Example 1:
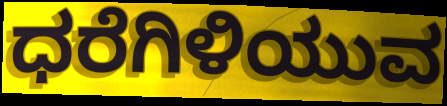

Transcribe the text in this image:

ಧರೆಗಿಳಿಯುವ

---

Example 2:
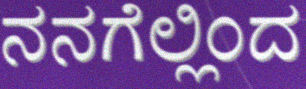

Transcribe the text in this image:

ನನಗೆಲ್ಲಿಂದ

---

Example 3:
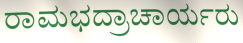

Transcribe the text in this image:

ರಾಮಭದ್ರಾಚಾರ್ಯರು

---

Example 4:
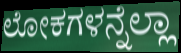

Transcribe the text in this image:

ಲೋಕಗಳನ್ನೆಲ್ಲಾ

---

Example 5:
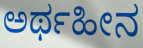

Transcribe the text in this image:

ಅರ್ಥಹೀನ